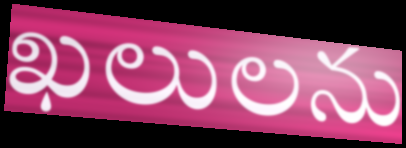
ఖలులను